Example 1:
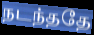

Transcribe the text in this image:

நடந்ததே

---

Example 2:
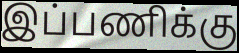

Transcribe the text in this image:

இப்பணிக்கு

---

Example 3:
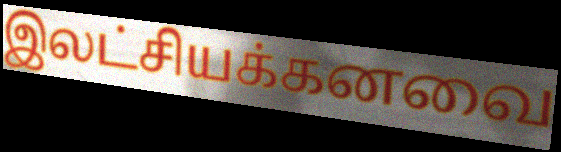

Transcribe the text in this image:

இலட்சியக்கனவை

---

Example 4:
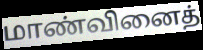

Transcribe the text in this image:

மாண்வினைத்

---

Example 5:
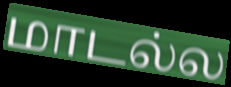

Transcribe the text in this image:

மாடல்ல